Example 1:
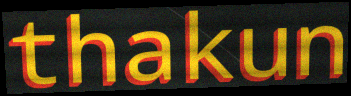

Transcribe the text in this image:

thakun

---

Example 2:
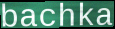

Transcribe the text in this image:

bachka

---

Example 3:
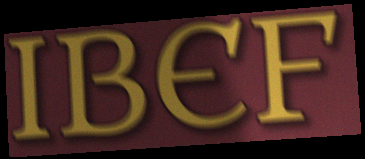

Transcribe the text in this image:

IBEF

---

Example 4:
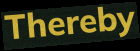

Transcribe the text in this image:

Thereby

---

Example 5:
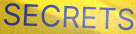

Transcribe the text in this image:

SECRETS